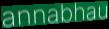
annabhau